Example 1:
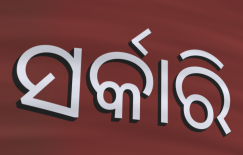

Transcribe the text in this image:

ସର୍କାରି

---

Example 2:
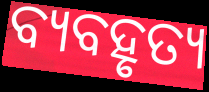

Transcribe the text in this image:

ବ୍ୟବହୃତ୍ୟ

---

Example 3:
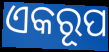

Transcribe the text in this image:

ଏକରୂପ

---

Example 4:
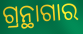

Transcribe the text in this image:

ଗ୍ରନ୍ଥାଗାର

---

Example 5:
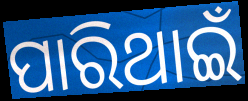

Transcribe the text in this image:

ପାରିଥାଇଁ